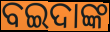
ବଇଦାଙ୍କ